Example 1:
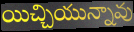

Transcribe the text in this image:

యిచ్చియున్నావు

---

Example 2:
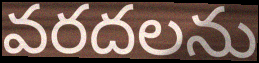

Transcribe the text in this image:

వరదలను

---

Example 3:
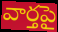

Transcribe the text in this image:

వార్తపై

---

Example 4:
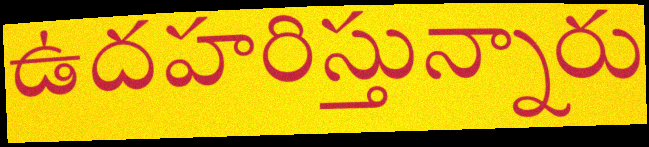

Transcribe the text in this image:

ఉదహరిస్తున్నారు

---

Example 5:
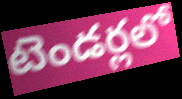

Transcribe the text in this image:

టెండర్లలో